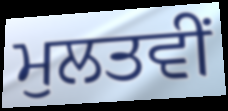
ਮੁਲਤਵੀਂ